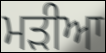
ਮਡ਼ੀਆ